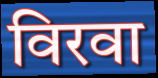
विरवा